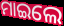
ମାଇଲେ